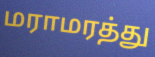
மராமரத்து